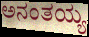
ಅನಂತಯ್ಯ